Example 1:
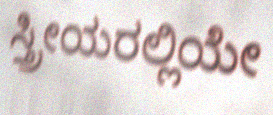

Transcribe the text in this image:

ಸ್ತ್ರೀಯರಲ್ಲಿಯೇ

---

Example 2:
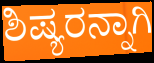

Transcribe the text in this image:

ಶಿಷ್ಯರನ್ನಾಗಿ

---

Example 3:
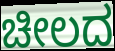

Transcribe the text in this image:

ಚೀಲದ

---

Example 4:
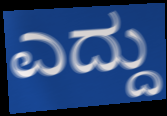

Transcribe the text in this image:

ಎದ್ದು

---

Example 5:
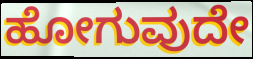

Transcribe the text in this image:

ಹೋಗುವುದೇ